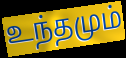
உந்தமும்